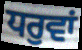
ਧਰੁਵਾਂ